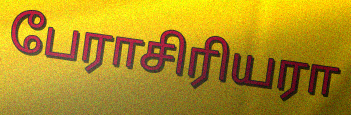
பேராசிரியரா